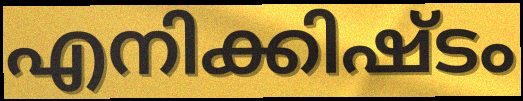
എനിക്കിഷ്ടം